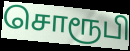
சொரூபி